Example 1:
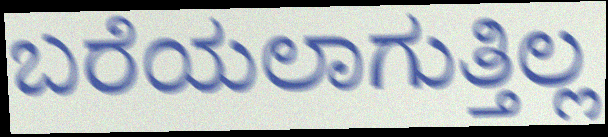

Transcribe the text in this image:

ಬರೆಯಲಾಗುತ್ತಿಲ್ಲ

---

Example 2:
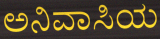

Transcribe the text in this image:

ಅನಿವಾಸಿಯ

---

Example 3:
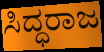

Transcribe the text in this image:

ಸಿದ್ಧರಾಜ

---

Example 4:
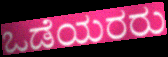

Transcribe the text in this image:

ಒಡೆಯರರು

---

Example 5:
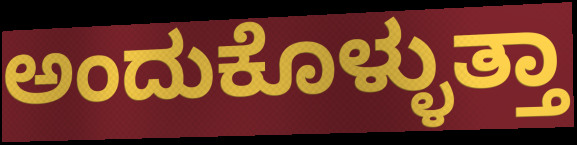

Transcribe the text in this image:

ಅಂದುಕೊಳ್ಳುತ್ತಾ